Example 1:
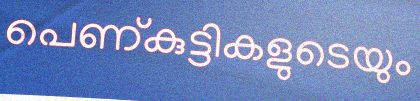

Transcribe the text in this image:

പെണ്കുട്ടികളുടെയും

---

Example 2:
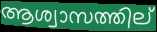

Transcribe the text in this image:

ആശ്വാസത്തില്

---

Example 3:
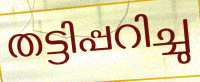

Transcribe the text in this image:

തട്ടിപ്പറിച്ചു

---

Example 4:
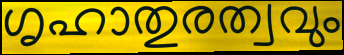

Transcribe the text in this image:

ഗൃഹാതുരത്വവും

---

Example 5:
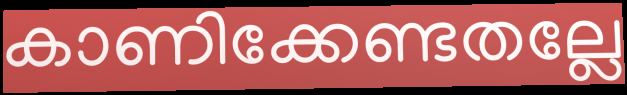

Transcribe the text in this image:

കാണിക്കേണ്ടതല്ലേ